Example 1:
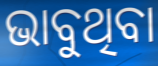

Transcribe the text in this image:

ଭାବୁଥିବା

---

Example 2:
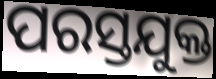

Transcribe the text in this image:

ପରସ୍ତଯୁକ୍ତ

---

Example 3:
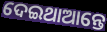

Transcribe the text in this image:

ଦେଇଥାଆନ୍ତେ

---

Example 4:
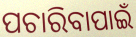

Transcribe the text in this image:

ପଚାରିବାପାଇଁ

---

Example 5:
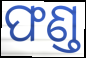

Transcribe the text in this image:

ଫଣ୍ଡ